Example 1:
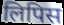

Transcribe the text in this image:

लिपिस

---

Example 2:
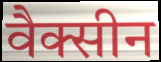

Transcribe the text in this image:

वैक्‍सीन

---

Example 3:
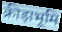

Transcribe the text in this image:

क्रीड़ाभूमि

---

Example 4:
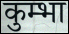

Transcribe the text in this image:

कुम्भा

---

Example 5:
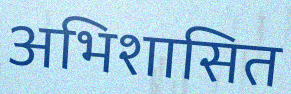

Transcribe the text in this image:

अभिशासित